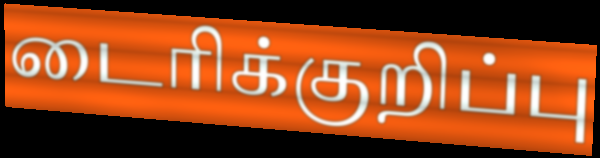
டைரிக்குறிப்பு